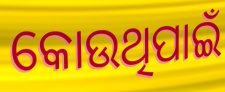
କୋଉଥିପାଇଁ